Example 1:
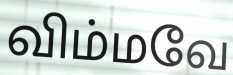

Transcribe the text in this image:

விம்மவே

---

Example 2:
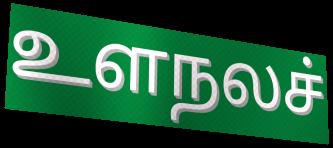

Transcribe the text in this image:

உளநலச்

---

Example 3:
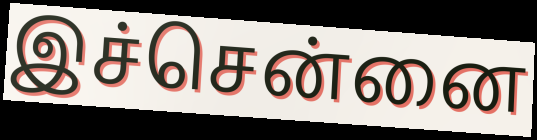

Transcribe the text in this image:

இச்சென்னை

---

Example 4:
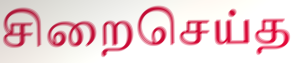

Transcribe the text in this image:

சிறைசெய்த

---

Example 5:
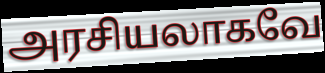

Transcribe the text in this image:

அரசியலாகவே